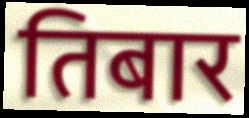
तिबार